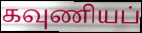
கவுணியப்